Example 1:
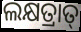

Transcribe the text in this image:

ଲକ୍ଷତ୍ରାତ୍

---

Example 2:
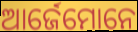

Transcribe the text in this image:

ଆର୍ଜେମୋନେ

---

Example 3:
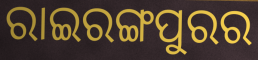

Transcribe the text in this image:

ରାଇରଙ୍ଗପୁରର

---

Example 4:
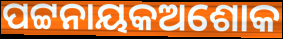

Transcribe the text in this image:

ପଟ୍ଟନାୟକଅଶୋକ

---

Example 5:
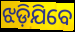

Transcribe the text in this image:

ଝଡ଼ିଯିବେ